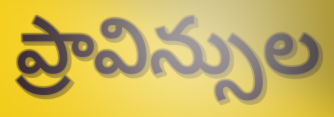
ప్రావిన్సుల